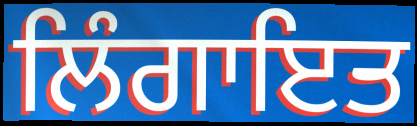
ਲਿੰਗਾਇਤ